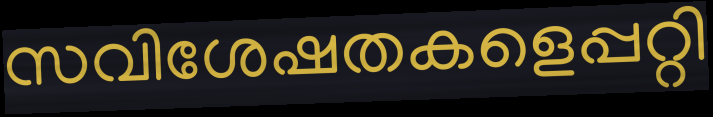
സവിശേഷതകളെപ്പറ്റി